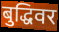
बुद्धिवर